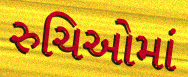
રુચિઓમાં